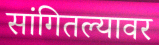
सांगितल्यावर